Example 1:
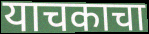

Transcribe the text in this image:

याचकाचा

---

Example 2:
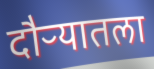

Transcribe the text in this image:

दौऱ्यातला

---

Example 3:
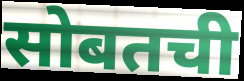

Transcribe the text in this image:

सोबतची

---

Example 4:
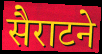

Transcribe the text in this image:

सैराटने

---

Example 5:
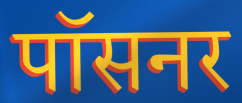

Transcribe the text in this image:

पॉसनर